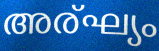
അര്ഘ്യം